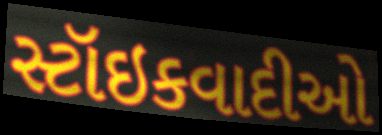
સ્ટૉઇકવાદીઓ